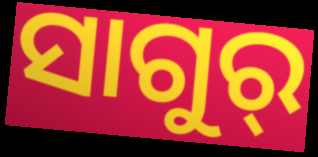
ସାଗୁର୍